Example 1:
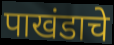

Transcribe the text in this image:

पाखंडाचे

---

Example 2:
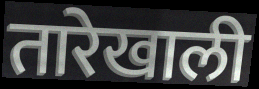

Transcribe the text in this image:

तारेखाली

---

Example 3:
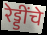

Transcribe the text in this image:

रेड्डींचे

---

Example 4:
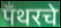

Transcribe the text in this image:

पँथरचे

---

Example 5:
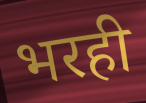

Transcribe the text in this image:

भरही